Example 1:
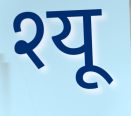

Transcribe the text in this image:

श्यू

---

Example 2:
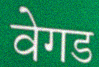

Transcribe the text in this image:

वेगड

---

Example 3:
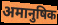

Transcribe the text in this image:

अमानुषिक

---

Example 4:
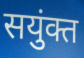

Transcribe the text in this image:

सयुंक्त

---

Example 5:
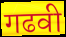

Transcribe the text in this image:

गढवी